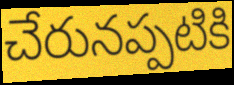
చేరునప్పటికి